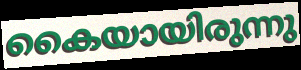
കൈയായിരുന്നു